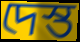
দেস্ত